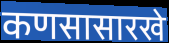
कणसासारखे